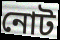
নোট